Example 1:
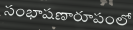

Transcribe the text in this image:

సంభాషణారూపంలో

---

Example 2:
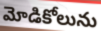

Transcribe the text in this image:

మోడికోలును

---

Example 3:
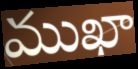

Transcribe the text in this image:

ముఖా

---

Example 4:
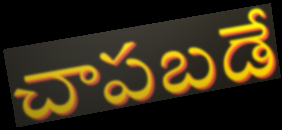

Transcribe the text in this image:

చాపబడే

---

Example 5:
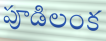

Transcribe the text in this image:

పూడిలంక